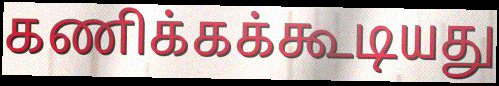
கணிக்கக்கூடியது